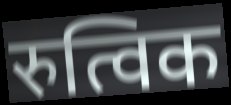
रुत्विक